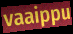
vaaippu